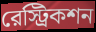
রেস্ট্রিকশন